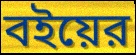
বইয়ের